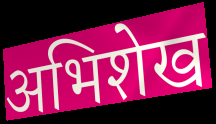
अभिशेख